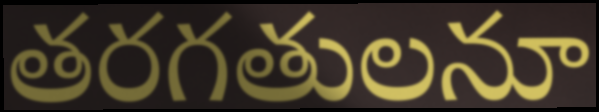
తరగతులనూ